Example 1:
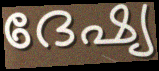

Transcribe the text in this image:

ദേഷ്യ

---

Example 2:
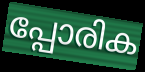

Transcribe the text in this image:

പ്പോരിക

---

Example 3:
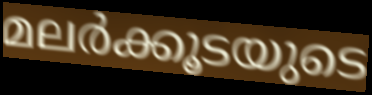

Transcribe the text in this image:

മലർക്കൂടയുടെ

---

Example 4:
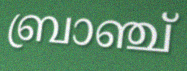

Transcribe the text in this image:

ബ്രാഞ്ച്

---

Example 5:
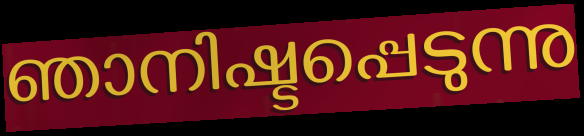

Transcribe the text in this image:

ഞാനിഷ്ടപ്പെടുന്നു